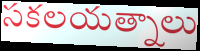
సకలయత్నాలు